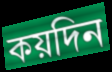
কয়দিন